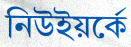
নিউইয়র্কে